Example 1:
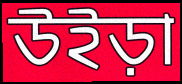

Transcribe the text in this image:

উইড়া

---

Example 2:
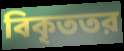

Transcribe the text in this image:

বিকৃততর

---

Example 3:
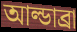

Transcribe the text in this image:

আল্ডাব্রা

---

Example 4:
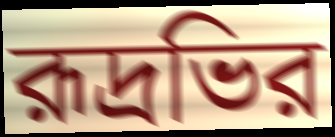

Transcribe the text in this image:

রূদ্রভির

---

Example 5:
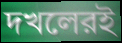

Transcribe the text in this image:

দখলেরই